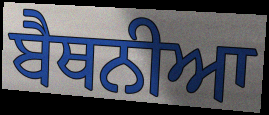
ਬੈਥਨੀਆ